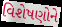
વિશેષણોને